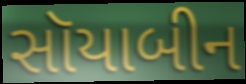
સૉયાબીન